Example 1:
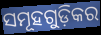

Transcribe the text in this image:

ସମୂହଗୁଡ଼ିକର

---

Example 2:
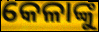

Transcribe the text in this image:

କେଳାଙ୍କୁ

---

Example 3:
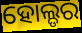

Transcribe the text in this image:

ହୋଲ୍ଡର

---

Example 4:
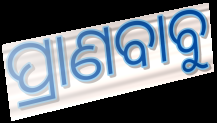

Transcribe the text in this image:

ପ୍ରାଣବାବୁ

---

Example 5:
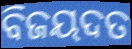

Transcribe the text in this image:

ବିଜୟଦତ